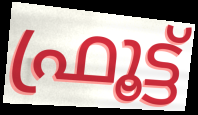
ഫ്രൂട്ട്